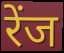
रेंज